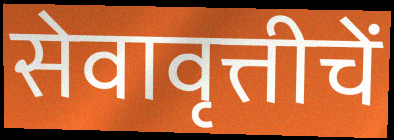
सेवावृत्तीचें